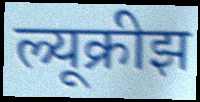
ल्यूक्रीझ